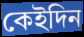
কেইদিন